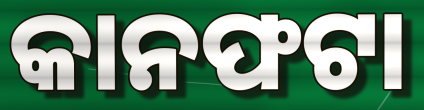
କାନଫଟା